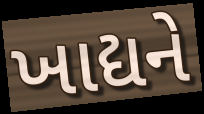
ખાદ્યને